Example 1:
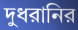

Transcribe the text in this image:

দুধরানির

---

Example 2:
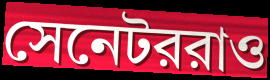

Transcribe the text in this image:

সেনেটররাও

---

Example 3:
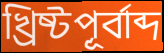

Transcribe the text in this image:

খ্রিষ্টপূর্বাব্দ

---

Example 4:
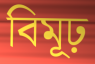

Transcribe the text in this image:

বিমূঢ়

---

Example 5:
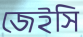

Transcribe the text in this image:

জেইসি